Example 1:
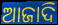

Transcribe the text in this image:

ଆଜାଦି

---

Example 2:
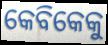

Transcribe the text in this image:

କେବିକେକୁ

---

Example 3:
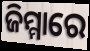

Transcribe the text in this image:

ଜିମ୍ମାରେ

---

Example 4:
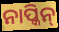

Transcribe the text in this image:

ନାପ୍କିନ୍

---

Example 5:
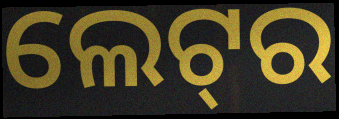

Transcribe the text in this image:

ଲେଟ୍‌ର